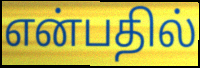
என்பதில்